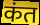
कंत